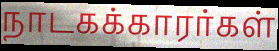
நாடகக்காரர்கள்